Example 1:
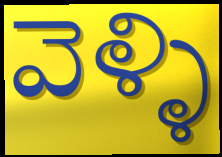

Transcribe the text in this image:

వెళ్ళి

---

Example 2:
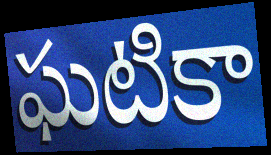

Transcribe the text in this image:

ఘటికా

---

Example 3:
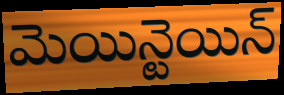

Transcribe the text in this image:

మెయిన్టెయిన్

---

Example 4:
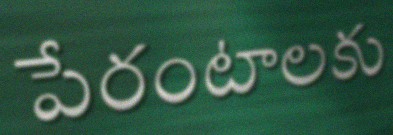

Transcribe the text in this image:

పేరంటాలకు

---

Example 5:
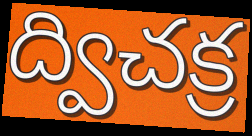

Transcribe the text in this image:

ద్విచక్ర